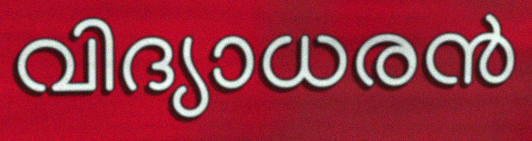
വിദ്യാധരൻ